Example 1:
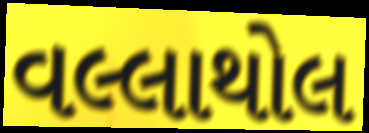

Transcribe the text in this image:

વલ્લાથોલ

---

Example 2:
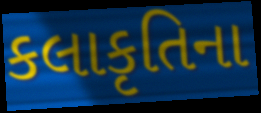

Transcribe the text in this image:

કલાકૃતિના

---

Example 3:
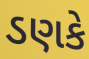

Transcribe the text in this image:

ડણકે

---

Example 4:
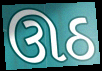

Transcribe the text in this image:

ઊઠ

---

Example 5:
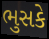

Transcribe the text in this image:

ભુસકે